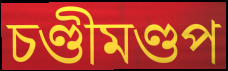
চণ্ডীমণ্ডপ